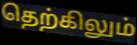
தெற்கிலும்